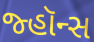
જ્હૉન્સ